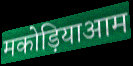
मकोड़ियाआम